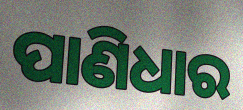
ପାଣିଧାର